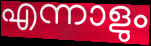
എന്നാളും